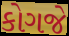
કોગજે